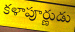
కళాపూర్ణుడు